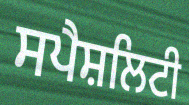
ਸਪੈਸ਼ਲਿਟੀ